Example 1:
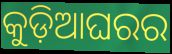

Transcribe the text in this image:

କୁଡ଼ିଆଘରର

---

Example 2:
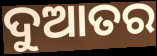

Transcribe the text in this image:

ଦୁଆତର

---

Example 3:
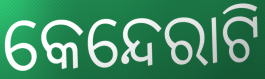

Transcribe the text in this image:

କେନ୍ଦେରାଟି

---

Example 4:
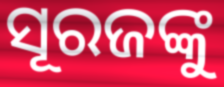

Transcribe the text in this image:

ସୂରଜଙ୍କୁ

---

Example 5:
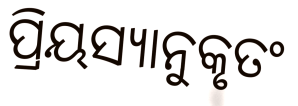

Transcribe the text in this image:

ପ୍ରିୟସ୍ୟାନୁକୃତଂ